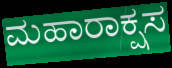
ಮಹಾರಾಕ್ಷಸ